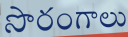
సొరంగాలు